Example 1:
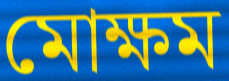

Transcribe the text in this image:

মোক্ষম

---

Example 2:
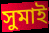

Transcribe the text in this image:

সুমাই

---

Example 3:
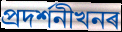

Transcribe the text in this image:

প্ৰদৰ্শনীখনৰ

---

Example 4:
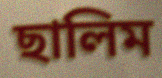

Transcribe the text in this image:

ছালিম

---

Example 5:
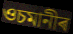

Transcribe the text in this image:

ওচমানীৰ